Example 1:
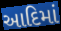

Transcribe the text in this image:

આદિમાં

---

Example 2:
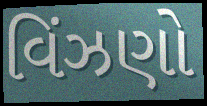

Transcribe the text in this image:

વિંઝણો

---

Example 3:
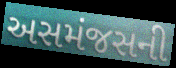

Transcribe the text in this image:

અસમંજસની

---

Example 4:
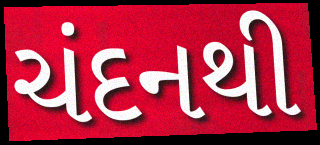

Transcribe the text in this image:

ચંદનથી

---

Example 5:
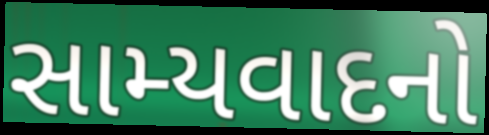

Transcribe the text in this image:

સામ્યવાદનો